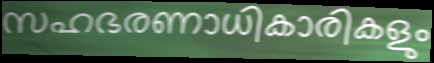
സഹഭരണാധികാരികളും